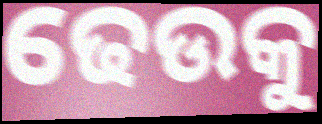
ଢେଉକୁ